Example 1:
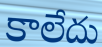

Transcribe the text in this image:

కాలేదు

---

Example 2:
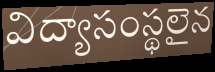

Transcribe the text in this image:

విద్యాసంస్థలైన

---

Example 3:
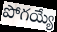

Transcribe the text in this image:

పోగయ్యే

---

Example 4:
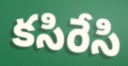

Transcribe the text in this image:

కసిరేసి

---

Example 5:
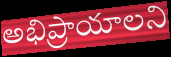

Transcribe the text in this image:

అభిప్రాయాలని